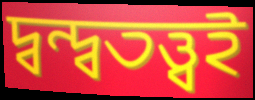
দ্বন্দ্বতত্ত্বই